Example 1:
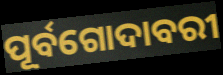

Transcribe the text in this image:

ପୂର୍ବଗୋଦାବରୀ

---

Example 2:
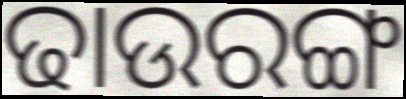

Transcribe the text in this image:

ଢାଉରଙ୍ଗ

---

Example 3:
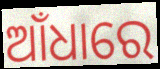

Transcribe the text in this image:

ଆଁଧାରେ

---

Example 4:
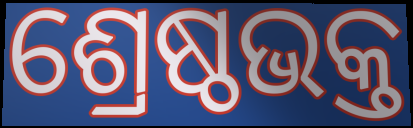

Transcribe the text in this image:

ଶ୍ରେଷ୍ଠଭକ୍ତ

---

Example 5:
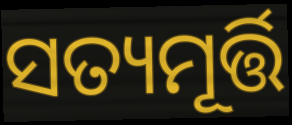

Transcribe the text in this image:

ସତ୍ୟମୂର୍ତ୍ତି